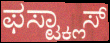
ಫಸ್ಟ್ಕ್ಲಾಸ್